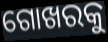
ଗୋଖରକୁ